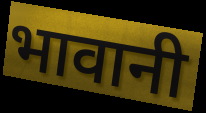
भावानी